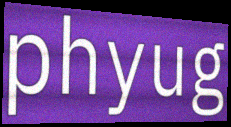
phyug